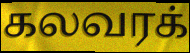
கலவரக்